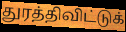
துரத்திவிட்டுக்